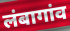
लंबागांव